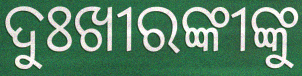
ଦୁଃଖୀରଙ୍କୀଙ୍କୁ